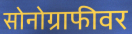
सोनोग्राफीवर